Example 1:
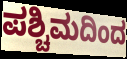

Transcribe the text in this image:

ಪಶ್ಚಿಮದಿಂದ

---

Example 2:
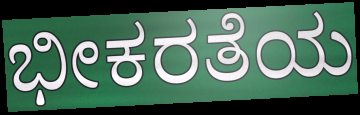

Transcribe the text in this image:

ಭೀಕರತೆಯ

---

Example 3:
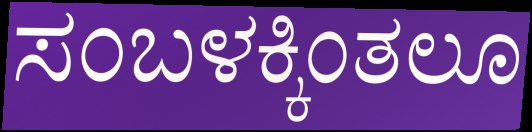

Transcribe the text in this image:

ಸಂಬಳಕ್ಕಿಂತಲೂ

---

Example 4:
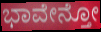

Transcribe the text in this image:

ಭಾವೇನ್ತೋ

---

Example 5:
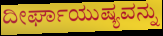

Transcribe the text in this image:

ದೀರ್ಘಾಯುಷ್ಯವನ್ನು